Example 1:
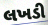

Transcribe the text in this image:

લખડી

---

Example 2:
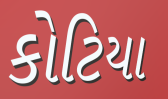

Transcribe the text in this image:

કોટિયા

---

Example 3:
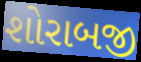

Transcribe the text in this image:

શોરાબજી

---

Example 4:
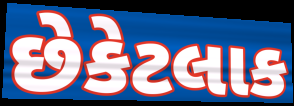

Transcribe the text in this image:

છેકેટલાક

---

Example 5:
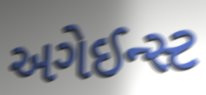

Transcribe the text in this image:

અગેઈન્સ્ટ